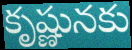
కృష్ణునకు